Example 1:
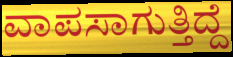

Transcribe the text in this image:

ವಾಪಸಾಗುತ್ತಿದ್ದೆ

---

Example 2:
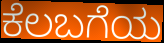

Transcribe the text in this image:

ಕೆಲಬಗೆಯ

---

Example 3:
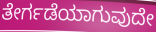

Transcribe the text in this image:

ತೇರ್ಗಡೆಯಾಗುವುದೇ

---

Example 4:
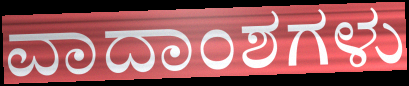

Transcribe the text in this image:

ವಾದಾಂಶಗಳು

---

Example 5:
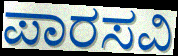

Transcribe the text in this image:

ಪಾರಸವಿ